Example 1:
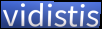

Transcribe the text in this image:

vidistis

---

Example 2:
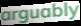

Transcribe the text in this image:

arguably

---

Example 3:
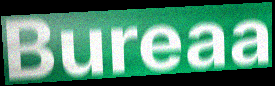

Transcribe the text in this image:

Bureaa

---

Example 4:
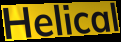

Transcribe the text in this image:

Helical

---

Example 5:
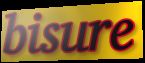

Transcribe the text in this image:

bisure